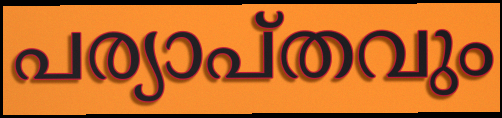
പര്യാപ്തവും